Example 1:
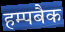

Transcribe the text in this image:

हम्पबैक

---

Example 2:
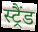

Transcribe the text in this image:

स्ट्रैंड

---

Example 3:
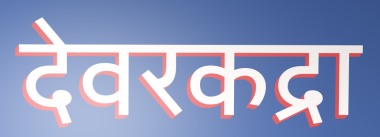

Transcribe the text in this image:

देवरकद्रा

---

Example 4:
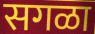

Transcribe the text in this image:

सगळा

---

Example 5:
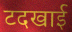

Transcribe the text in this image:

टदखाई